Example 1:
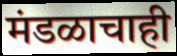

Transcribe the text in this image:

मंडळाचाही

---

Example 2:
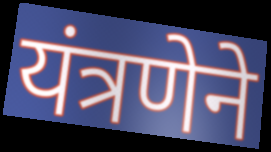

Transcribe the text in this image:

यंत्रणेने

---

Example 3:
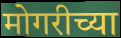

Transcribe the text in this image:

मोगरीच्या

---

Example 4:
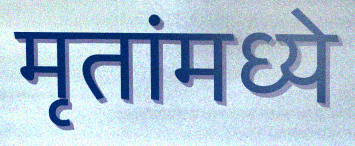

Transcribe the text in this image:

मृतांमध्ये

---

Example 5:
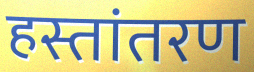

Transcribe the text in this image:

हस्तांतरण